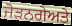
ਜੋੜਨਗੇਅਤੇ